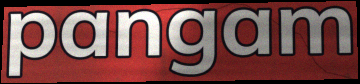
pangam